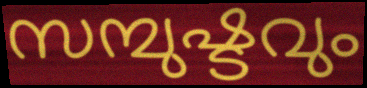
സമ്പുഷ്ടവും